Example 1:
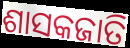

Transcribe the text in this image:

ଶାସକଜାତି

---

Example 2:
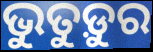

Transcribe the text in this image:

ଭୁତୁଡ଼ୁର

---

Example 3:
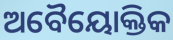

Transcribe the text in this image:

ଅବୈୟୋକ୍ତିକ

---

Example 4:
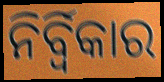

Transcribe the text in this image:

ନିର୍ବ୍ବିକାର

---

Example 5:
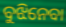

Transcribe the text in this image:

ବୁଝିନେବା